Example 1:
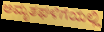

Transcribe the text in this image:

ಅಮೃತಘಳಿಗೆಯಲ್ಲಿ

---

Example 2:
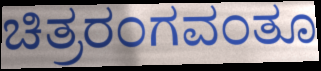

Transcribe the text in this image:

ಚಿತ್ರರಂಗವಂತೂ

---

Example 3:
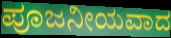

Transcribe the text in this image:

ಪೂಜನೀಯವಾದ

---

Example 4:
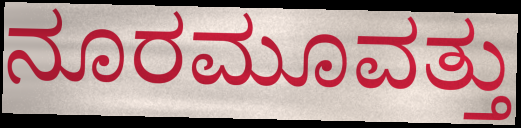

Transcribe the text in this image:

ನೂರಮೂವತ್ತು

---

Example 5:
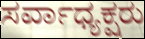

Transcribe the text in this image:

ಸರ್ವಾಧ್ಯಕ್ಷರು